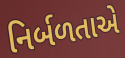
નિર્બળતાએ